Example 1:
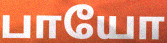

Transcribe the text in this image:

பாயோ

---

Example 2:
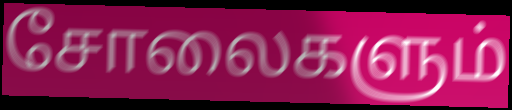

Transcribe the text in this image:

சோலைகளும்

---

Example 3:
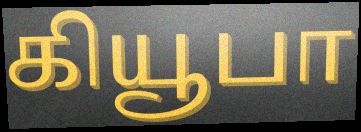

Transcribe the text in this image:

கியூபா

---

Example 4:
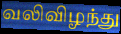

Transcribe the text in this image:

வலிவிழந்து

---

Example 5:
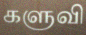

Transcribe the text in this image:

களுவி